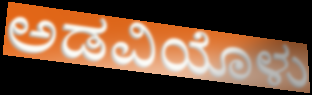
ಅಡವಿಯೊಳು